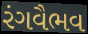
રંગવૈભવ